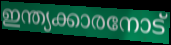
ഇന്ത്യക്കാരനോട്